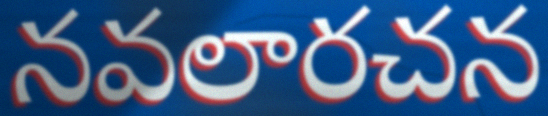
నవలారచన